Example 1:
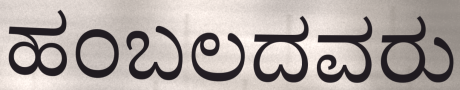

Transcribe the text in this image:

ಹಂಬಲದವರು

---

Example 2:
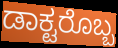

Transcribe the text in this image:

ಡಾಕ್ಟರೊಬ್ಬ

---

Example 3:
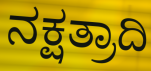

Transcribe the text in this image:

ನಕ್ಷತ್ರಾದಿ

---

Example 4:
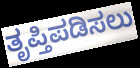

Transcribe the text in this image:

ತೃಪ್ತಿಪಡಿಸಲು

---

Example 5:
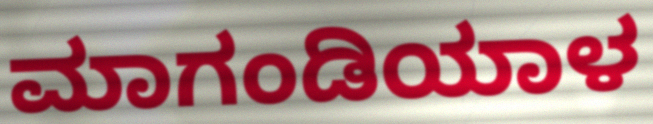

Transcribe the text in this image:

ಮಾಗಂಡಿಯಾಳ